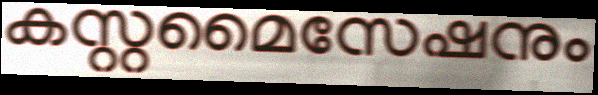
കസ്റ്റമൈസേഷനും